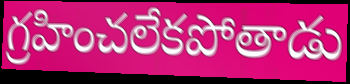
గ్రహించలేకపోతాడు